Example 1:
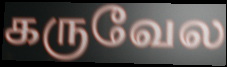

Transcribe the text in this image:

கருவேல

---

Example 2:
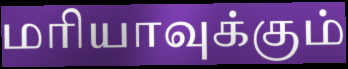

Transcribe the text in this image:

மரியாவுக்கும்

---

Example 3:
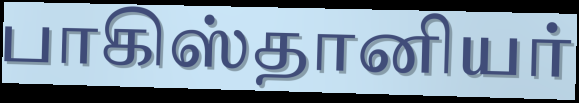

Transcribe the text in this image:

பாகிஸ்தானியர்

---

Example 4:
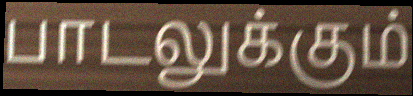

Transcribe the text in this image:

பாடலுக்கும்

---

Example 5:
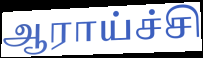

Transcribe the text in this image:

ஆராய்ச்சி